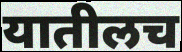
यातीलच